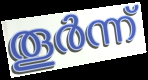
തൂർന്ന്